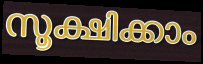
സൂക്ഷിക്കാം